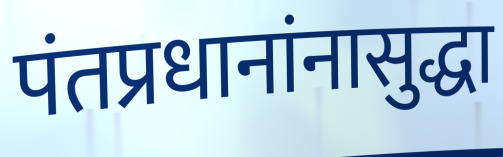
पंतप्रधानांनासुद्धा